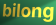
bilong